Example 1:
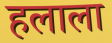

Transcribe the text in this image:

हलाला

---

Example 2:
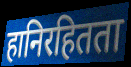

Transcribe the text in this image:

हानिरहितता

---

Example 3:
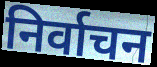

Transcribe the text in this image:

निर्वाचन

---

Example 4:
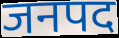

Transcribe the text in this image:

जनपद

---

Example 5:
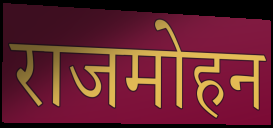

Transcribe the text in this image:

राजमोहन